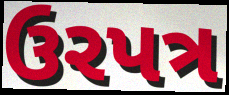
ઉરપત્ર